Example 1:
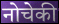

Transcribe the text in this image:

नोचेकी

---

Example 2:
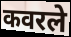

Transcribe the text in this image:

कवरले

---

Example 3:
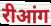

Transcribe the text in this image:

रीआंग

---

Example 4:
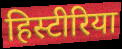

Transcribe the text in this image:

हिस्टीरिया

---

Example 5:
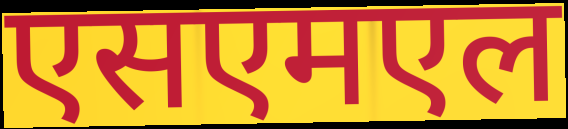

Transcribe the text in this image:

एसएमएल